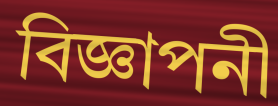
বিজ্ঞাপনী